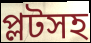
প্লটসহ